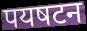
पयषटन